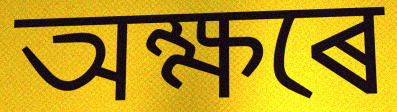
অক্ষৰে